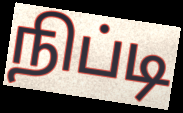
நிப்டி